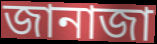
জানাজা